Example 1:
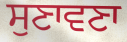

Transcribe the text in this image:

ਸੁਣਾਵਣਾ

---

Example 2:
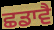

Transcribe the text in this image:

ਛਡਾਵੈ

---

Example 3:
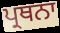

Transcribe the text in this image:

ਪ੍ਰਥਨਾ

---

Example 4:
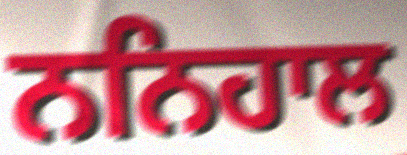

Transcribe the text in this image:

ਨਨਿਹਾਲ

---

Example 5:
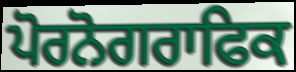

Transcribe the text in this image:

ਪੋਰਨੋਗਰਾਫਿਕ